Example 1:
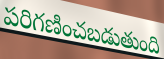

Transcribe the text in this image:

పరిగణించబడుతుంది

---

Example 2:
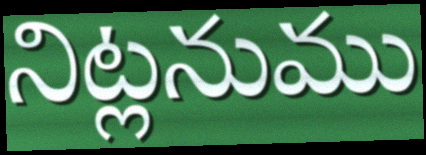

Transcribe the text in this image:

నిట్లనుము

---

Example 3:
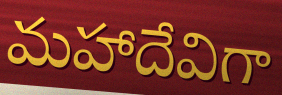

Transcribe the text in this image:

మహాదేవిగా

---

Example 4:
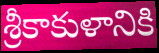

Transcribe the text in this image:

శ్రీకాకుళానికి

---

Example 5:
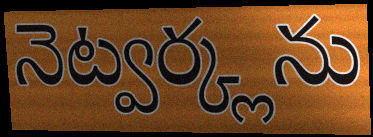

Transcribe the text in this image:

నెట్వర్క్లను